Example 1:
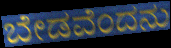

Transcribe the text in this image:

ಬೇಡವೆಂದನು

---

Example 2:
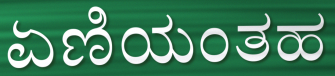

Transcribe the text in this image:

ಏಣಿಯಂತಹ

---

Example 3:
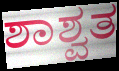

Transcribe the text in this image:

ಶಾಶ್ವತ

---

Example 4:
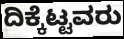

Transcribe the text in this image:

ದಿಕ್ಕೆಟ್ಟವರು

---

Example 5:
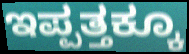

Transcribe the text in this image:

ಇಪ್ಪತ್ತಕ್ಕೂ